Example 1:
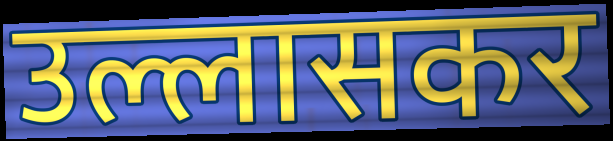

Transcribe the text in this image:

उल्लासकर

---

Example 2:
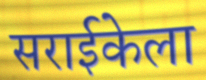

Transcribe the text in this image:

सराईकेला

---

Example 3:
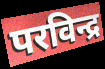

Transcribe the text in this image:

परविन्द्र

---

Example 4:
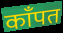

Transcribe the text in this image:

काँपत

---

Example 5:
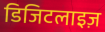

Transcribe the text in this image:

डिजिटलाइज़